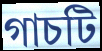
গাচটি